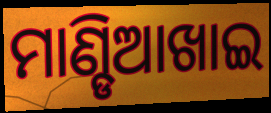
ମାଣ୍ଡିଆଖାଇ